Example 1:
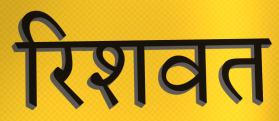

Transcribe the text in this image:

रिशवत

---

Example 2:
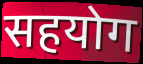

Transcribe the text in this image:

सहयोग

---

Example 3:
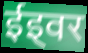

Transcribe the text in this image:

ईइ्वर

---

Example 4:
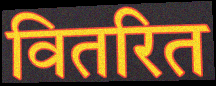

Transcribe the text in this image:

वितरित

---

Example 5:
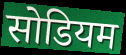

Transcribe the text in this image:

सोडियम